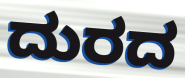
ದುರದ